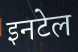
इनटेल